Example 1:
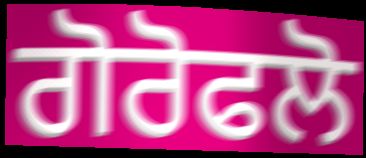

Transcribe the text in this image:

ਗੋਰੋਫਲੋ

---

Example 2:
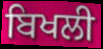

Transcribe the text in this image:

ਬਿਖਲੀ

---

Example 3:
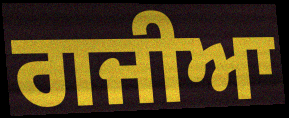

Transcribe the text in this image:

ਗਜੀਆ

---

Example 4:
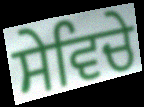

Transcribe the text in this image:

ਸੇਵਿਚੇ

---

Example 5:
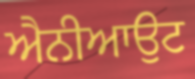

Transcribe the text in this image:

ਐਨੀਆਉਟ